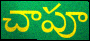
చాపూ